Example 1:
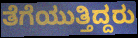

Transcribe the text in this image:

ತೆಗೆಯುತ್ತಿದ್ದರು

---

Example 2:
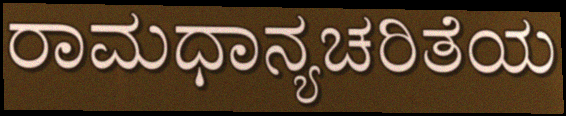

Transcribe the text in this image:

ರಾಮಧಾನ್ಯಚರಿತೆಯ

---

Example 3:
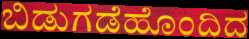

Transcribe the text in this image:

ಬಿಡುಗಡೆಹೊಂದಿದ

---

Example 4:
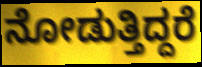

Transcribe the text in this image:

ನೋಡುತ್ತಿದ್ದರೆ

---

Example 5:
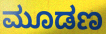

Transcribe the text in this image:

ಮೂಡಣ